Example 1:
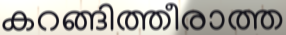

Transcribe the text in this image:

കറങ്ങിത്തീരാത്ത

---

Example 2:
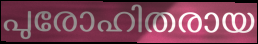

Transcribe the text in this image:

പുരോഹിതരായ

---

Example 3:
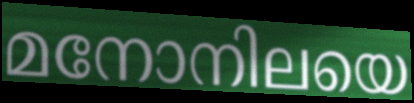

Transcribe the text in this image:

മനോനിലയെ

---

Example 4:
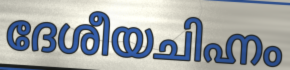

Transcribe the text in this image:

ദേശീയചിഹ്നം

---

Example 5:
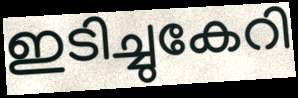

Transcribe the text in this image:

ഇടിച്ചുകേറി